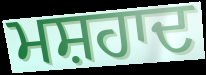
ਮਸ਼ਹਾਦ